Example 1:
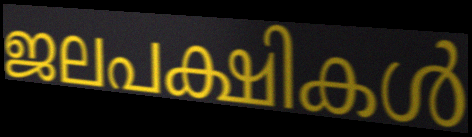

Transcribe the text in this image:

ജലപക്ഷികൾ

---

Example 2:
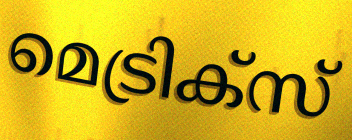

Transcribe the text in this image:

മെട്രിക്സ്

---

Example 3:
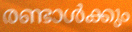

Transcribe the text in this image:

രണ്ടാൾക്കും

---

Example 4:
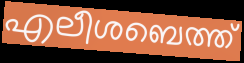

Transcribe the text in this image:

എലീശബെത്ത്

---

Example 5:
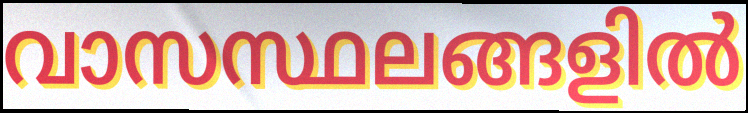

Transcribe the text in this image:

വാസസ്ഥലങ്ങളിൽ